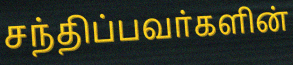
சந்திப்பவர்களின்